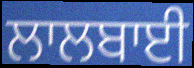
ਲਾਲਬਾਈ